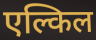
एल्किल